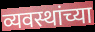
व्यवस्थांच्या